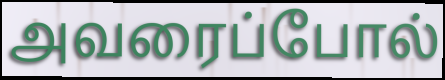
அவரைப்போல்